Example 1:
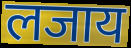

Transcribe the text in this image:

लजाय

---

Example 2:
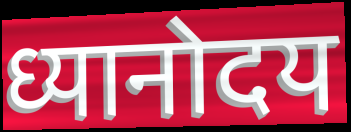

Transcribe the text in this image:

ध्यानोदय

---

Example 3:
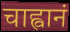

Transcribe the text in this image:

चाह्वानं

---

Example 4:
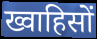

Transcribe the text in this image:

ख्वाहिसों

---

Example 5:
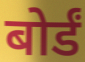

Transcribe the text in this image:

बोर्डं